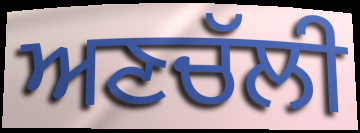
ਅਣਚੱਲੀ